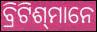
ବ୍ରିଟିଶ୍‌ମାନେ